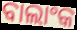
ବାଲାଂକ